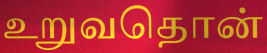
உறுவதொன்